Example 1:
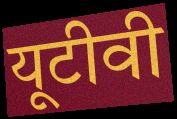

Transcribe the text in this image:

यूटीवी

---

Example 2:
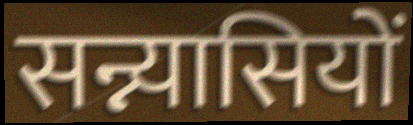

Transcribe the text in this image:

सन्न्यासियों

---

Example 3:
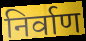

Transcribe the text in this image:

निर्वाण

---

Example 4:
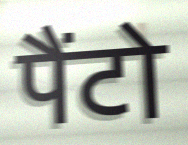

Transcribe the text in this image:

पैंटो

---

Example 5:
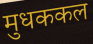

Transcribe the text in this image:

मुधककल